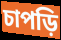
চাপড়ি